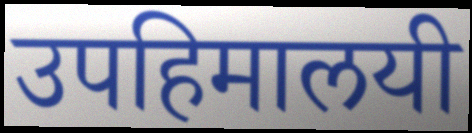
उपहिमालयी